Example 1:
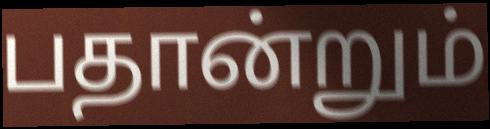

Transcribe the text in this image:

பதான்றும்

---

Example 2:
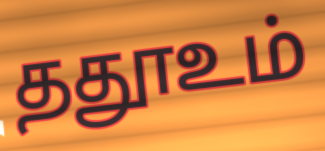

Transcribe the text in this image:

ததூஉம்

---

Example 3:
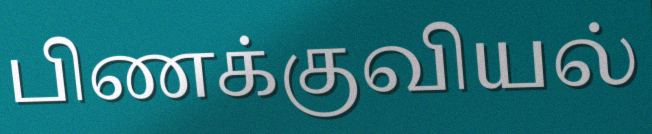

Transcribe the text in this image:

பிணக்குவியல்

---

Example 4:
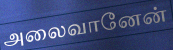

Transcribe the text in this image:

அலைவானேன்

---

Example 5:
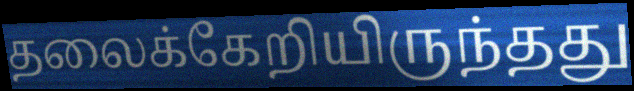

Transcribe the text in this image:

தலைக்கேறியிருந்தது